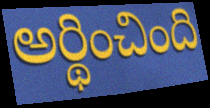
అర్థించింది